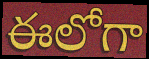
ఈలోగా